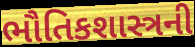
ભૌતિકશાસ્ત્રની